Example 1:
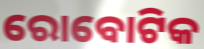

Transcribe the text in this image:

ରୋବୋଟିକ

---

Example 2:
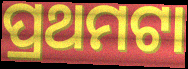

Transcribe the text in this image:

ପ୍ରଥମଟା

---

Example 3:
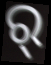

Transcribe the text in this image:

ର୍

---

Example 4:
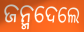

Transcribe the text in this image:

ଜନ୍ମଦେଲେ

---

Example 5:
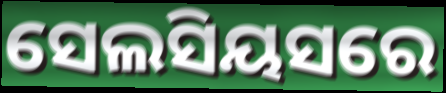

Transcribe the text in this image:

ସେଲସିୟସରେ